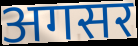
अगसर